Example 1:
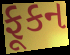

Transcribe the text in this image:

ફૂકન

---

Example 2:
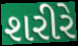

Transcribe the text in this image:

શરીરે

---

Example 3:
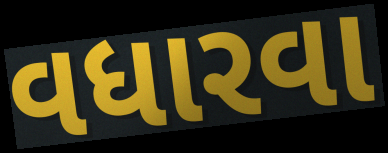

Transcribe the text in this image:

વધારવા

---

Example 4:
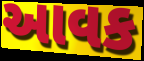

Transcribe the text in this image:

આવક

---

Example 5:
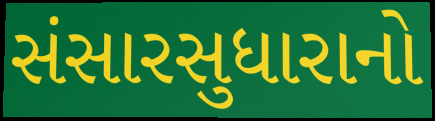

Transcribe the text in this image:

સંસારસુધારાનો